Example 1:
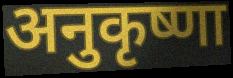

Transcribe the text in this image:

अनुकृष्णा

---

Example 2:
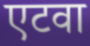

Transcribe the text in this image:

एटवा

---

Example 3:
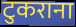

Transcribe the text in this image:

टुकराना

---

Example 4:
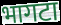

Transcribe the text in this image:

भागटा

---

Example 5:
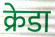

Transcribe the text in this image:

क्रेडा